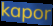
kapor